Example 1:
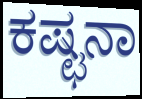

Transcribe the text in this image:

ಕಷ್ಟನಾ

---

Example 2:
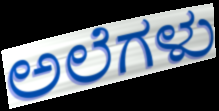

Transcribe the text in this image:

ಅಲೆಗಳು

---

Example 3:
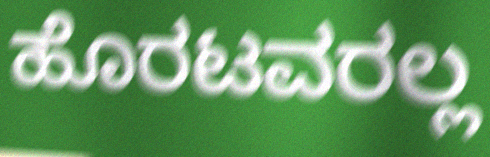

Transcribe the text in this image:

ಹೊರಟವರಲ್ಲ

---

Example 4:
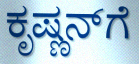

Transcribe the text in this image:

ಕೃಷ್ಣನ್‌ಗೆ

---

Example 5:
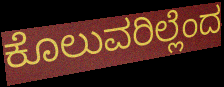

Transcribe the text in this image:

ಕೊಲುವರಿಲ್ಲೆಂದ